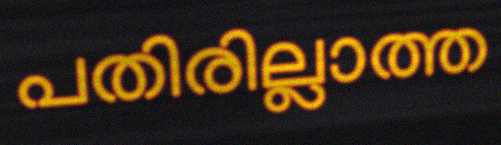
പതിരില്ലാത്ത